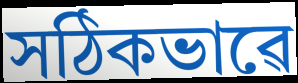
সঠিকভাৱে